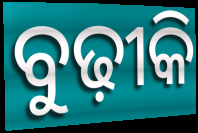
ବୁଢ଼ୀକି